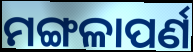
ମଙ୍ଗଳାପର୍ଣ